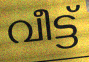
വീട്ട്